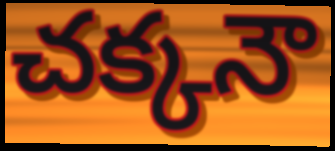
చక్కనౌ